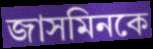
জাসমিনকে